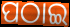
ପଠାଇ